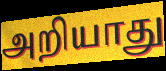
அறியாது